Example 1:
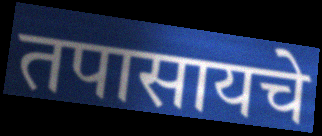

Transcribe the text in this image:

तपासायचे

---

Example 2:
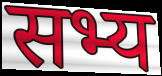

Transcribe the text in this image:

सभ्य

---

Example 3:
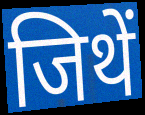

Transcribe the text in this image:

जिथें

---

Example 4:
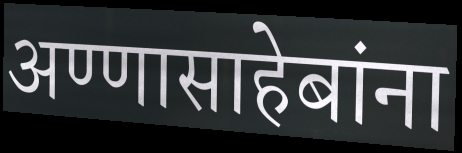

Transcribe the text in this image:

अण्णासाहेबांना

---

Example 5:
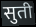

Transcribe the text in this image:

सुती